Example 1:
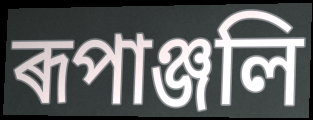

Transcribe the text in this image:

ৰূপাঞ্জলি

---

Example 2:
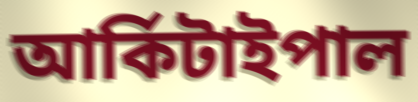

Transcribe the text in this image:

আৰ্কিটাইপাল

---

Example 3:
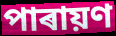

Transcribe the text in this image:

পাৰায়ণ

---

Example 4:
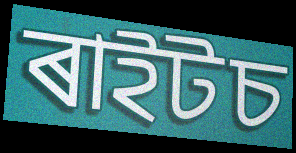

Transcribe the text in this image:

ৰাইটচ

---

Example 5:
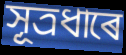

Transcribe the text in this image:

সূত্ৰধাৰে